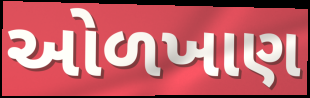
ઓળખાણ